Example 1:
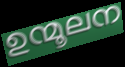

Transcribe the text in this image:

ഉന്മൂലന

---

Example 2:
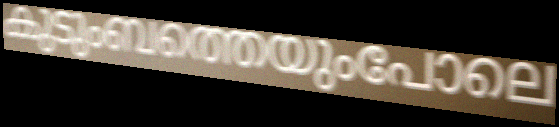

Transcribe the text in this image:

കുടുംബത്തെയുംപോലെ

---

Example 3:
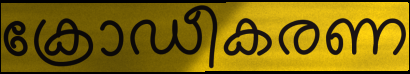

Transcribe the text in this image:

ക്രോഡീകരണ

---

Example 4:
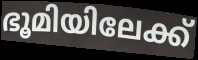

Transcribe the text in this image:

ഭൂമിയിലേക്ക്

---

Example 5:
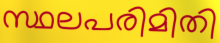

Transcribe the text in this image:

സ്ഥലപരിമിതി